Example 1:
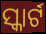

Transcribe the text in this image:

ସ୍କାର୍ଟ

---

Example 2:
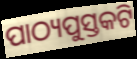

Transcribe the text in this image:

ପାଠ୍ୟପୁସ୍ତକଟି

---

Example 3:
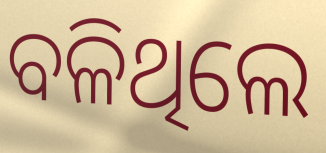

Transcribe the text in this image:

ବଳିଥିଲେ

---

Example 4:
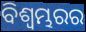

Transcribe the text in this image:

ବିଶ୍ଵମ୍ଭରର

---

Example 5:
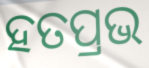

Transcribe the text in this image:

ହତପ୍ରଭ